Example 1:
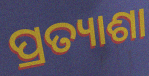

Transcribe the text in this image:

ପ୍ରତ୍ୟାଶା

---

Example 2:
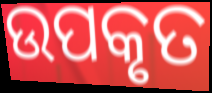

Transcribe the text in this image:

ଉପକୃତ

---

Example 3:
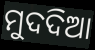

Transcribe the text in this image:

ମୁଦଦିଆ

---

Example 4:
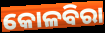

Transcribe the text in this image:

କୋଳବିରା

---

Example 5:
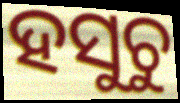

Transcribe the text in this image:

ହସୁଚୁ